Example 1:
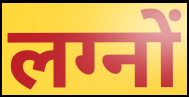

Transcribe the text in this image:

लग्नों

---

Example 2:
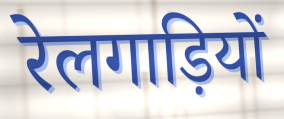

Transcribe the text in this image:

रेलगाड़ियों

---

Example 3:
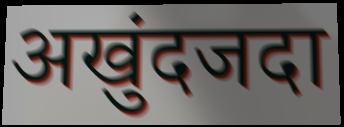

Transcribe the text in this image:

अखुंदजदा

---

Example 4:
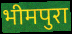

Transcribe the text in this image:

भीमपुरा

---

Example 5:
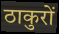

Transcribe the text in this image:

ठाकुरों